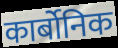
कार्बोनिक